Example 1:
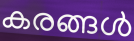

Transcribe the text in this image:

കരങ്ങൾ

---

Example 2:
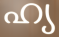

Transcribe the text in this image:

ഹ്യ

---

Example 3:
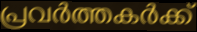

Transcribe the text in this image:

പ്രവർത്തകർക്ക്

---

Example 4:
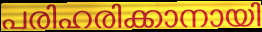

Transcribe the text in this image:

പരിഹരിക്കാനായി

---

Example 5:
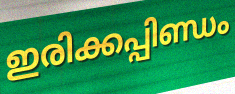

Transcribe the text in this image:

ഇരിക്കപ്പിണ്ഡം